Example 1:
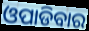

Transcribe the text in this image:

ଓପାଡିବାର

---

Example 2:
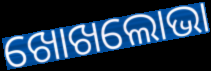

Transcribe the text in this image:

ଖୋଖଲୋଭା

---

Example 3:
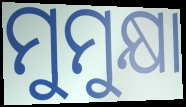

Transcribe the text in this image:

ମୁମୁକ୍ଷା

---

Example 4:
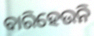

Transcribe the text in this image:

ବାରିହେଉନି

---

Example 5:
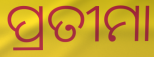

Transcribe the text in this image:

ପ୍ରତୀମା